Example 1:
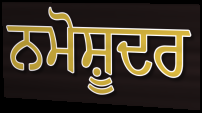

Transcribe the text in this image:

ਨਮੋਸ਼ੂਦਰ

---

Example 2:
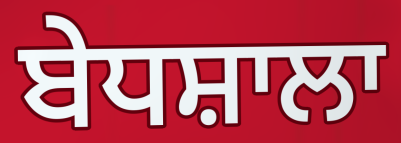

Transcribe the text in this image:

ਬੇਧਸ਼ਾਲਾ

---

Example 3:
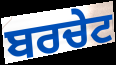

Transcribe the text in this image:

ਬਰਚੇਟ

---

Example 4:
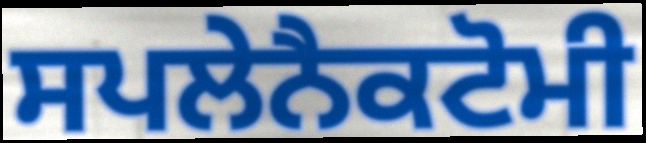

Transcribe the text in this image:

ਸਪਲੇਨੈਕਟੋਮੀ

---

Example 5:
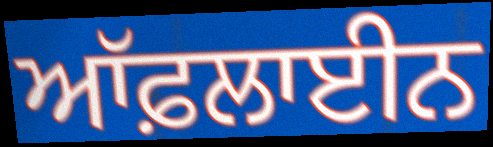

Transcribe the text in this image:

ਆੱਫ਼ਲਾਈਨ